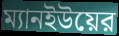
ম্যানইউয়ের